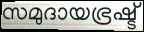
സമുദായഭ്രഷ്ട്